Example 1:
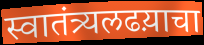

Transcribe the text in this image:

स्वातंत्र्यलढय़ाचा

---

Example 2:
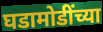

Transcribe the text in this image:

घडामोडींच्या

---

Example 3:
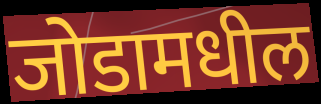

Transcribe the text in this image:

जोडामधील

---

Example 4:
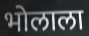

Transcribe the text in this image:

भोलाला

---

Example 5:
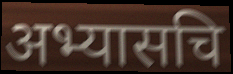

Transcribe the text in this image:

अभ्यासचि